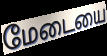
மேடையை